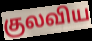
குலவிய